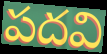
పదవి